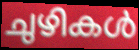
ചുഴികൾ